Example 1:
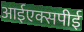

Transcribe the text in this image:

आईएक्सपीई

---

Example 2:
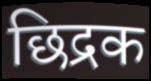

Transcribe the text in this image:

छिद्रक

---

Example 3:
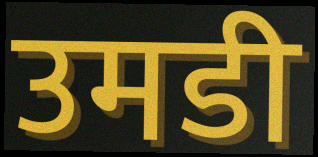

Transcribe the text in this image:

उमडी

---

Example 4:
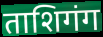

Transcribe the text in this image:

ताशिगंग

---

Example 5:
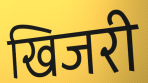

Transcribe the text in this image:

खिजरी